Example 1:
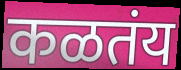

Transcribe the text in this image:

कळतंय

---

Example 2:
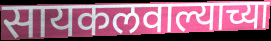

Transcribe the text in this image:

सायकलवाल्याच्या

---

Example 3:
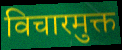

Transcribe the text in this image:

विचारमुक्त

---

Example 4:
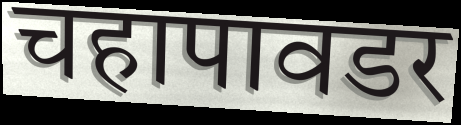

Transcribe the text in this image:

चहापावडर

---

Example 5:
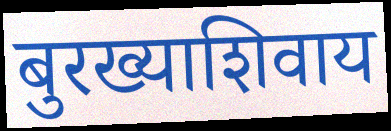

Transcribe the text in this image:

बुरख्याशिवाय